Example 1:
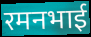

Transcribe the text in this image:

रमनभाई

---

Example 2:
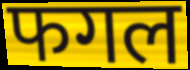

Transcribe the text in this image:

फगल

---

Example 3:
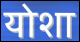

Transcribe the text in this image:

योशा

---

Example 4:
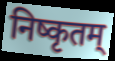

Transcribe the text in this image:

निष्कृतम्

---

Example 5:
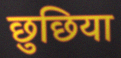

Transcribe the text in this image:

छुछिया